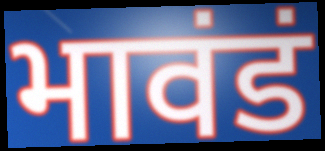
भावंडं